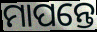
ମାପନ୍ତେ